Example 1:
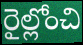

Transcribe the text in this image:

రైల్లోంచి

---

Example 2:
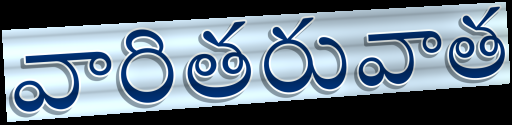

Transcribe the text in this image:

వారితరువాత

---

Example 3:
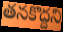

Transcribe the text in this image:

తనకొద్దని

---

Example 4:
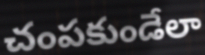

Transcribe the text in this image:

చంపకుండేలా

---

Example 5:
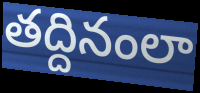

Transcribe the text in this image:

తద్దినంలా